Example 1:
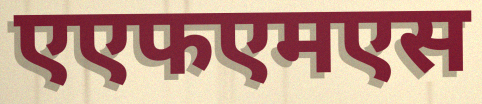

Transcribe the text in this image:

एएफएमएस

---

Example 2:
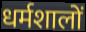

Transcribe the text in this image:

धर्मशालों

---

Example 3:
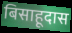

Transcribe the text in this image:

बिसाहूदास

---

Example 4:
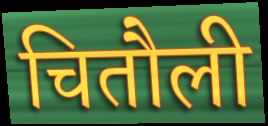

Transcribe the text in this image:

चितौली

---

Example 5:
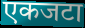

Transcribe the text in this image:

एकजटा